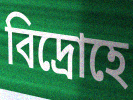
বিদ্রোহে